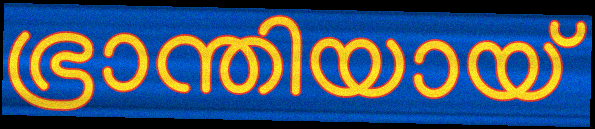
ഭ്രാന്തിയായ്